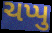
ચપ્પુ